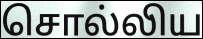
சொல்லிய